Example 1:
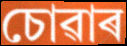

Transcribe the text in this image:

চোৱাৰ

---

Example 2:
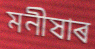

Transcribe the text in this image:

মনীষাৰ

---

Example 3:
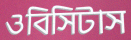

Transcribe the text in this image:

ওবিসিটাস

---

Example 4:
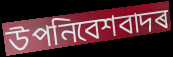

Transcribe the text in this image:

উপনিবেশবাদৰ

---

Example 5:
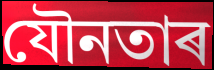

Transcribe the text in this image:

যৌনতাৰ